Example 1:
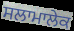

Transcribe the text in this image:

ਸਲਾਮਾਲੇਕ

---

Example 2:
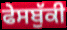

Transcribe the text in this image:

ਫੇਸਬੁੱਕੀ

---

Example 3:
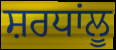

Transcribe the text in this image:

ਸ਼ਰਧਾਂਲੂ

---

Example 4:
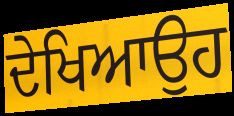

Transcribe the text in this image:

ਦੇਖਿਆਉਹ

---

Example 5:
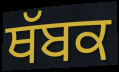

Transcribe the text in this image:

ਥੱਬਕ